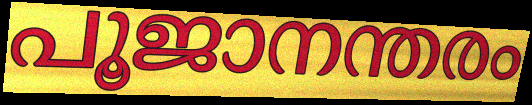
പൂജാനന്തരം